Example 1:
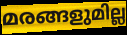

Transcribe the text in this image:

മരങ്ങളുമില്ല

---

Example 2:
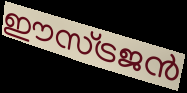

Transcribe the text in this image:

ഈസ്ട്രജൻ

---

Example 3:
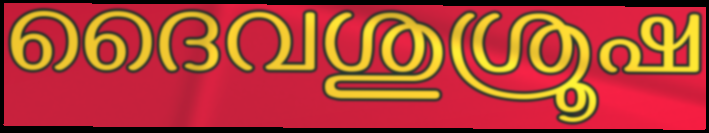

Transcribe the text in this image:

ദൈവശുശ്രൂഷ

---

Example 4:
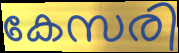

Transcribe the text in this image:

കേസരി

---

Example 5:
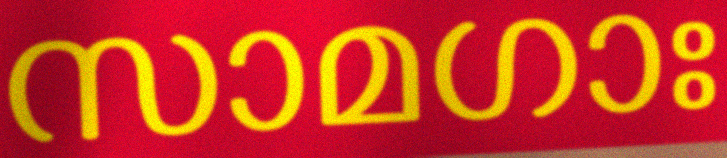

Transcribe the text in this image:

സാമഗാഃ